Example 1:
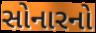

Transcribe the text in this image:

સોનારનો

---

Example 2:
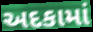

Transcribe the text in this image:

અદકામાં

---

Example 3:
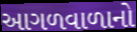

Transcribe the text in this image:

આગળવાળાનો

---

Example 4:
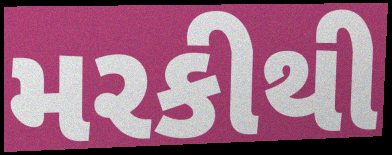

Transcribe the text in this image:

મરકીથી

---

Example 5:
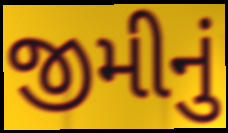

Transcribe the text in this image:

જીમીનું